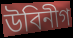
উবিনীগ